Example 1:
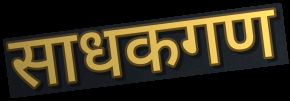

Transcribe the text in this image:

साधकगण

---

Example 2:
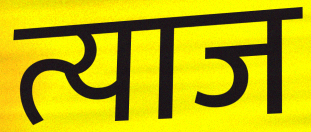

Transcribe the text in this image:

त्याज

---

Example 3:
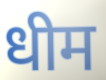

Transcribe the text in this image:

धीम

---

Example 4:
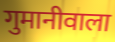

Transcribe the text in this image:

गुमानीवाला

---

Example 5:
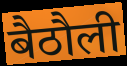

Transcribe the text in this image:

बैठौली